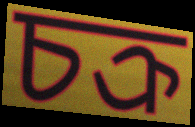
চক্ৰ